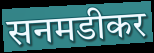
सनमडीकर